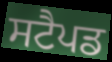
ਸਟੈਪਡ